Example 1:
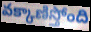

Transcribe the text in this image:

వక్కాణిస్తోంది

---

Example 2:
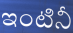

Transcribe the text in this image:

ఇంటినీ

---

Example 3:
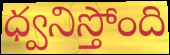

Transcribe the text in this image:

ధ్వనిస్తోంది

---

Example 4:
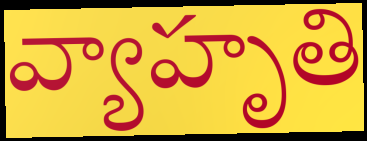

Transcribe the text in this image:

వ్యాహృతి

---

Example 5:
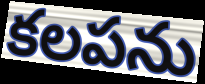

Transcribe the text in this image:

కలపను